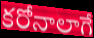
కరోనాలాగే